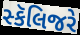
સ્કૅલિજરે